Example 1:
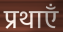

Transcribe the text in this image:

प्रथाएँ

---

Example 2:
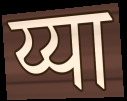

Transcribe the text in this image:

य्या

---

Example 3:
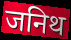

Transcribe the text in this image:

जनिथ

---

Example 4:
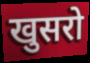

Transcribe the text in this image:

खुसरो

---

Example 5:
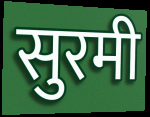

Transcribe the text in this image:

सुरमी